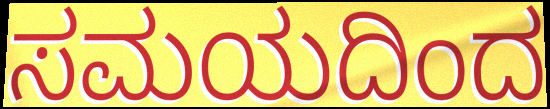
ಸಮಯದಿಂದ